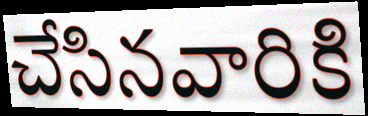
చేసినవారికి